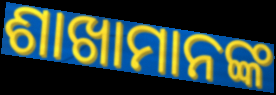
ଶାଖାମାନଙ୍କ